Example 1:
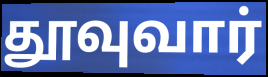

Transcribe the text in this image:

தூவுவார்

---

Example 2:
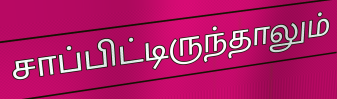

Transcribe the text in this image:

சாப்பிட்டிருந்தாலும்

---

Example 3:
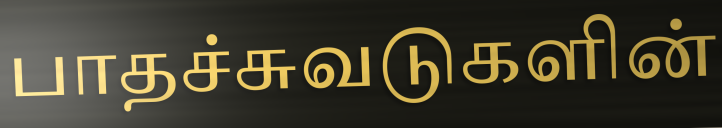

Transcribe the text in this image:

பாதச்சுவடுகளின்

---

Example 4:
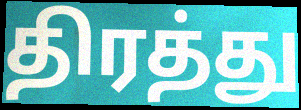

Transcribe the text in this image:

திரத்து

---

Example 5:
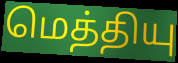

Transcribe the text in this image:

மெத்தியு